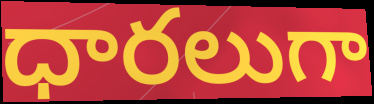
ధారలుగా